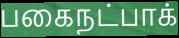
பகைநட்பாக்